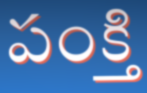
పంక్తి